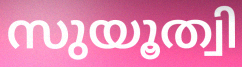
സുയൂത്വി